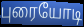
புரையோடி